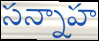
సన్నాహ